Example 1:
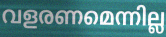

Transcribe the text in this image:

വളരണമെന്നില്ല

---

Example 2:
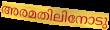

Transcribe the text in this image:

അരമതിലിനോടു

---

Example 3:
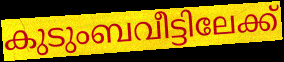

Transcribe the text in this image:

കുടുംബവീട്ടിലേക്ക്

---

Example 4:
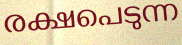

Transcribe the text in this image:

രക്ഷപെടുന്ന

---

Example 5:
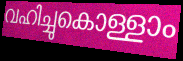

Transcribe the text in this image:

വഹിച്ചുകൊള്ളാം